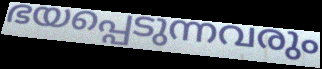
ഭയപ്പെടുന്നവരും